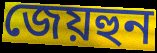
জেয়হুন